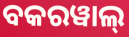
ବକରୱାଲ୍